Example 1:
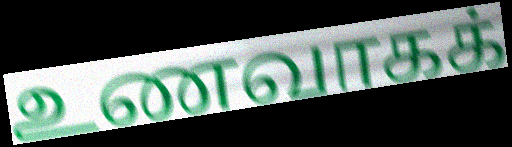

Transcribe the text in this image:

உணவாகக்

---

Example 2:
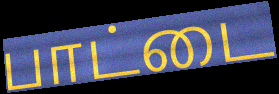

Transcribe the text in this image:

பாட்டை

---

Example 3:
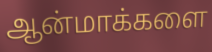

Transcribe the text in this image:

ஆன்மாக்களை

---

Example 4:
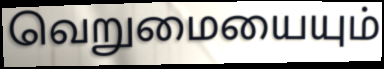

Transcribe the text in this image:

வெறுமையையும்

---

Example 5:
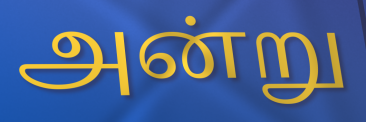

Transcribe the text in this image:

அன்று